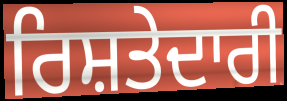
ਰਿਸ਼ਤੇਦਾਰੀ